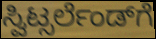
ಸ್ವಿಟ್ಸರ್ಲೆಂಡ್‌ಗೆ